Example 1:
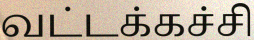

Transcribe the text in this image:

வட்டக்கச்சி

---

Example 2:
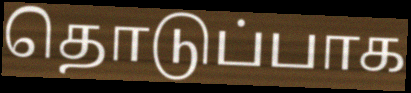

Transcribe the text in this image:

தொடுப்பாக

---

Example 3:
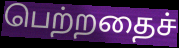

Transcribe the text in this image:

பெற்றதைச்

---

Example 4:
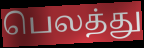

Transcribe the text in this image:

பெலத்து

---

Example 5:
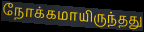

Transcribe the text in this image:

நோக்கமாயிருந்தது